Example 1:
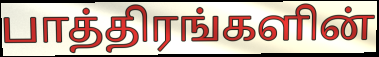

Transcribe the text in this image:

பாத்திரங்களின்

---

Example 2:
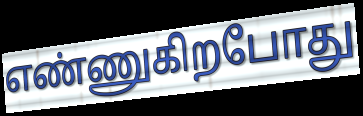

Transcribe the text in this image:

எண்ணுகிறபோது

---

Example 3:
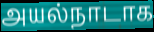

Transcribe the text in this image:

அயல்நாடாக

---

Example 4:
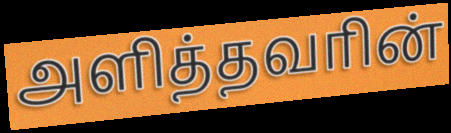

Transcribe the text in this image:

அளித்தவரின்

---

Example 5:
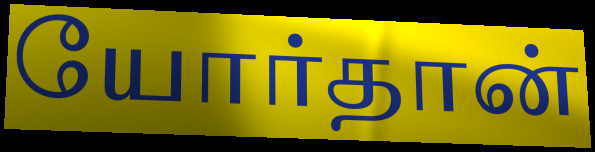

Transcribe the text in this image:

யோர்தான்